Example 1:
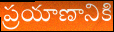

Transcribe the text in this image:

ప్రయాణానికి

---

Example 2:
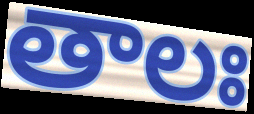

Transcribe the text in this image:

తాలః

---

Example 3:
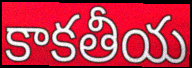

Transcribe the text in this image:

కాకతీయ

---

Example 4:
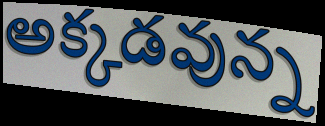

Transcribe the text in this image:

అక్కడవున్న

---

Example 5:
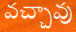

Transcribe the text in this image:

వచ్చావు